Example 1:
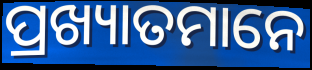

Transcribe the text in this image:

ପ୍ରଖ୍ୟାତମାନେ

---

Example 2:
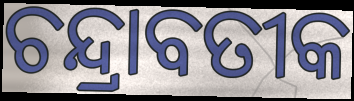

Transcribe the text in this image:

ଚନ୍ଦ୍ରାବତୀକ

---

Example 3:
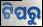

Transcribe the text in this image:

ଟିପରୁ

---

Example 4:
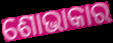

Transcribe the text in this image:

ଶୋଭାକାର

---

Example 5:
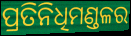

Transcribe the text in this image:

ପ୍ରତିନିଧିମଣ୍ଡଳର